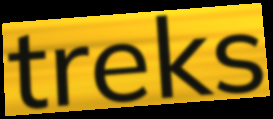
treks